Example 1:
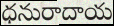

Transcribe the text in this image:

ధనురాదాయ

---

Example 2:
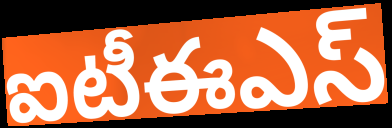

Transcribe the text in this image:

ఐటీఈఎస్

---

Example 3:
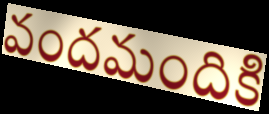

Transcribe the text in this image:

వందమందికి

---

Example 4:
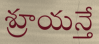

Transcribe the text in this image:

శ్రూయన్తే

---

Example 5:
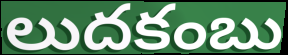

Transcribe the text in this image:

లుదకంబు